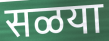
सळया